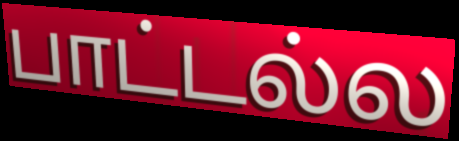
பாட்டல்ல